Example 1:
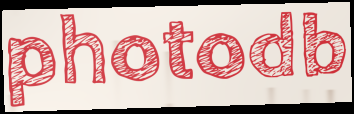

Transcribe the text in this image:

photodb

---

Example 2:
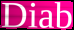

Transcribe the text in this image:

Diab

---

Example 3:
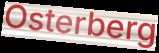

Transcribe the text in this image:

Osterberg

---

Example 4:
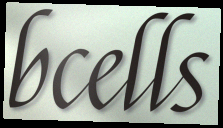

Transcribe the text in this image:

bcells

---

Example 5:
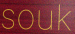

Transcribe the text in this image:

souk